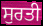
ਸੁਰਤੀ